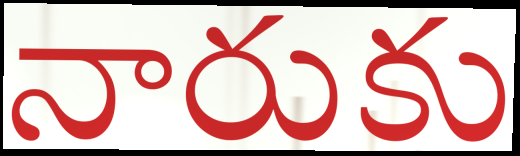
నారుకు